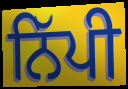
ਨਿੱਪੀ